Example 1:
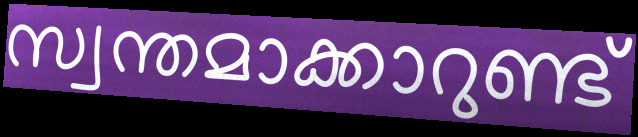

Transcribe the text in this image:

സ്വന്തമാക്കാറുണ്ട്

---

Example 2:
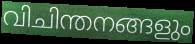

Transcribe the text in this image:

വിചിന്തനങ്ങളും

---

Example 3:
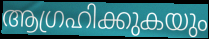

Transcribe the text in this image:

ആഗ്രഹിക്കുകയും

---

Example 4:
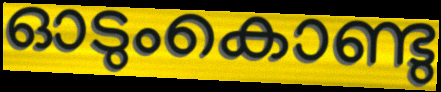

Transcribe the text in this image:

ഓടുംകൊണ്ടു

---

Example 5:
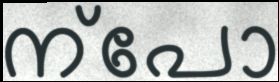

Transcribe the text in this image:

ന്പോ